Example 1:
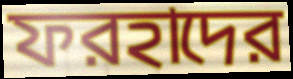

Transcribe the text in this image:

ফরহাদের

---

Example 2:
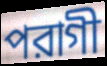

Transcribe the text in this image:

পরাগী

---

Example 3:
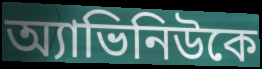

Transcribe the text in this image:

অ্যাভিনিউকে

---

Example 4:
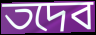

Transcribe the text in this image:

তদেব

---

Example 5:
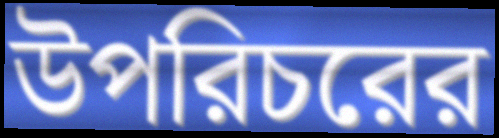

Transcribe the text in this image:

উপরিচরের